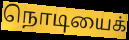
நொடியைக்